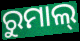
ରୁମାଲ୍